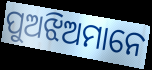
ପୁଅଝିଅମାନେ